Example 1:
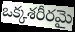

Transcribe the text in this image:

ఒక్కశరీరమై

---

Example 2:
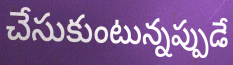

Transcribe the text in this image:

చేసుకుంటున్నప్పుడే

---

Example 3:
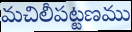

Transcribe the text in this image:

మచిలీపట్టణము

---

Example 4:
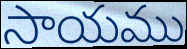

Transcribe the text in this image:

సాయము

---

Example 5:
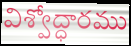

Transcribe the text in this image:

విశ్వోద్ధారము